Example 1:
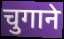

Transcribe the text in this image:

चुगाने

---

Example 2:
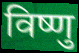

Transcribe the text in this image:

विष्णु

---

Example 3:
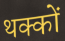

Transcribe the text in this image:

थक्कों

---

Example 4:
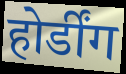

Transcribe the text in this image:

होर्डींग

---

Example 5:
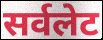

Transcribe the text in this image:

सर्वलेट